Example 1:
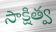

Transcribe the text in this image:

సాక్షిత్వ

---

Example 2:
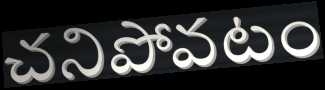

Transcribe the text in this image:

చనిపోవటం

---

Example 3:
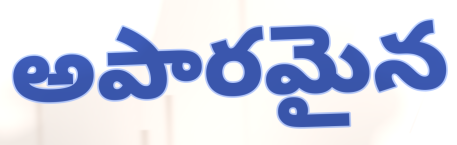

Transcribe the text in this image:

అపారమైన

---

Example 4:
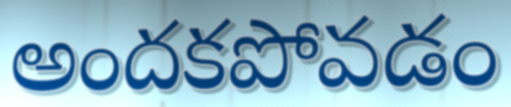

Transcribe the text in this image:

అందకపోవడం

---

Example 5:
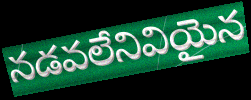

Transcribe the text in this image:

నడవలేనివియైన